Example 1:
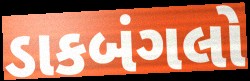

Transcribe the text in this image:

ડાકબંગલો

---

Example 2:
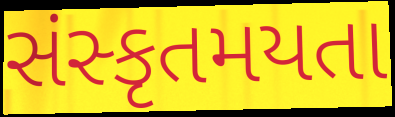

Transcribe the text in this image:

સંસ્કૃતમયતા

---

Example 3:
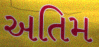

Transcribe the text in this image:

અતિમ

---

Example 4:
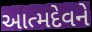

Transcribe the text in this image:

આત્મદેવને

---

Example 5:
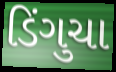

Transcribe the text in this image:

ડિંગુચા